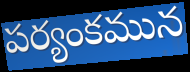
పర్యంకమున